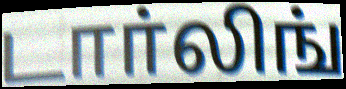
டார்லிங்